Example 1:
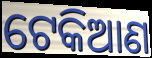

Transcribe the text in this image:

ଟେକିଆଣ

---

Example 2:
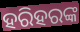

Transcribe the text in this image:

ହରିହରଙ୍କ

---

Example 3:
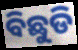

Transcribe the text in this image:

ବିଛୁଡି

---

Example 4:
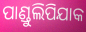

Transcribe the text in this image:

ପାଣ୍ଡୁଲିପିଯାକ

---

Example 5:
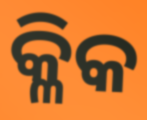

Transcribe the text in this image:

କ୍ଳିକ